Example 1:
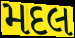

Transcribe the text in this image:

મદલ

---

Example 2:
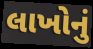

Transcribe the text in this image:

લાખોનું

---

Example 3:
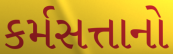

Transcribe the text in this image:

કર્મસત્તાનો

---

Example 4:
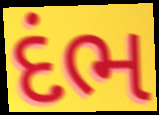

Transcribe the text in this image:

દંભ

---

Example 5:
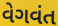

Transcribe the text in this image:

વેગવંત